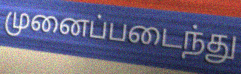
முனைப்படைந்து